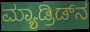
ಮ್ಯಾಡ್ರಿಡ್‌ನ